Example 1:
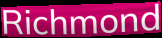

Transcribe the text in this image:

Richmond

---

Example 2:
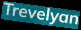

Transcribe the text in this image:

Trevelyan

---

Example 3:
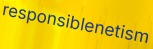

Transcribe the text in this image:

responsiblenetism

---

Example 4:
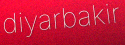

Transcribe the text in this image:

diyarbakir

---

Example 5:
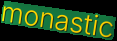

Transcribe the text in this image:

monastic